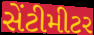
સેંટીમીટર